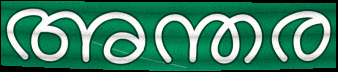
അന്തര